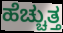
ಹೆಚ್ಚುತ್ತ